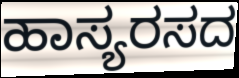
ಹಾಸ್ಯರಸದ